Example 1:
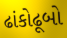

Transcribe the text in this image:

ઢાંકોઢૂબો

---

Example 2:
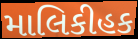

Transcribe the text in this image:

માલિકીહક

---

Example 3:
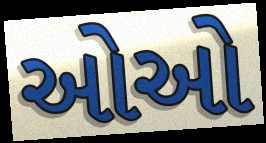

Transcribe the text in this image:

ઓઓ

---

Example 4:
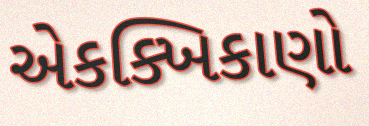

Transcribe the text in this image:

એકક્ખિકાણો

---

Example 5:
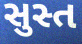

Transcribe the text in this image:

સુસ્ત